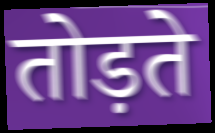
तोड़ते